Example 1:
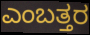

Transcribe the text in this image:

ಎಂಬತ್ತರ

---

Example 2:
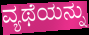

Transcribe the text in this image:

ವ್ಯಥೆಯನ್ನು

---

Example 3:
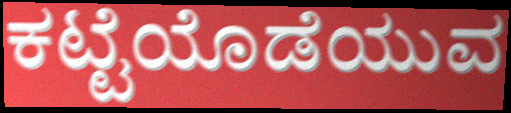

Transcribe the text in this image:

ಕಟ್ಟೆಯೊಡೆಯುವ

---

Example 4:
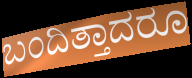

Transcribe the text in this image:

ಬಂದಿತ್ತಾದರೂ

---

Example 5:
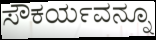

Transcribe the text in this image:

ಸೌಕರ್ಯವನ್ನೂ